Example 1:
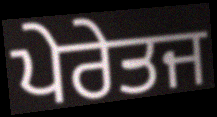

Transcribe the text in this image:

ਪੇਰੇਤਜ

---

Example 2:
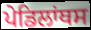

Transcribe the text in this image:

ਪੇਡਿਲਾਂਥਸ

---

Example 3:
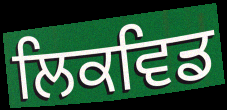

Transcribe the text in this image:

ਲਿਕਵਿਡ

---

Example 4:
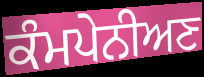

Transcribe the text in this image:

ਕੰਮਪੇਨੀਅਣ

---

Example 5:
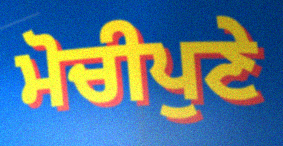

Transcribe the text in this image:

ਮੋਚੀਪੁਣੇ